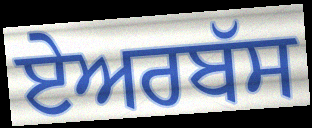
ਏਅਰਬੱਸ